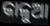
କାଳୁଆ